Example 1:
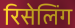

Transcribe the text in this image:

रिसेलिंग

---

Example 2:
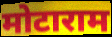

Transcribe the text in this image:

मोटाराम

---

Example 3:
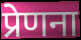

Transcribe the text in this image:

प्रेणना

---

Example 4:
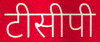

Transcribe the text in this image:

टीसीपी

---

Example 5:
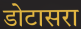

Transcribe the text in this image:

डोटासरा